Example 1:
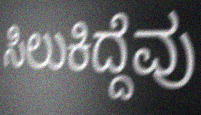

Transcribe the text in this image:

ಸಿಲುಕಿದ್ದೆವು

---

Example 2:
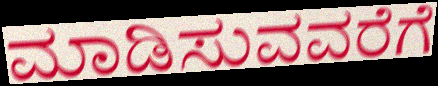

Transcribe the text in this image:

ಮಾಡಿಸುವವರೆಗೆ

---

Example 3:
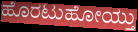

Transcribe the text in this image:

ಹೊರಟುಹೋಯ್ತು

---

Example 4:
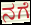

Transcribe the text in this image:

ನಗೆ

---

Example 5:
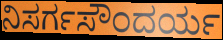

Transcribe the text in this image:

ನಿಸರ್ಗಸೌಂದರ್ಯ